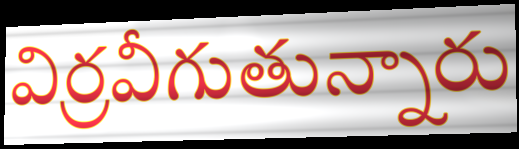
విర్రవీగుతున్నారు